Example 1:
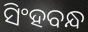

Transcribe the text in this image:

ସିଂହବନ୍ଧ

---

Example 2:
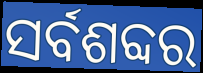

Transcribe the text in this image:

ସର୍ବଶବ୍ଦର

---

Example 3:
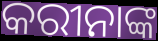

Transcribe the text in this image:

କରୀନାଙ୍କ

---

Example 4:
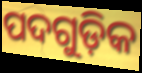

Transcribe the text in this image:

ପଦଗୁଡ଼ିକ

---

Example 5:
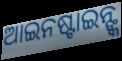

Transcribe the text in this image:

ଆଇନଷ୍ଟାଇନ୍ଙ୍କ